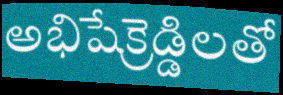
అభిషేక్రెడ్డిలతో